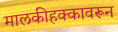
मालकीहक्कावरून